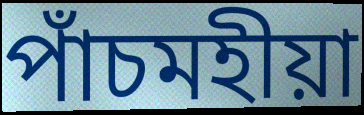
পাঁচমহীয়া